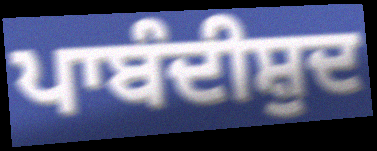
ਪਾਬੰਦੀਸ਼ੁਦ